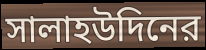
সালাহউদিনের